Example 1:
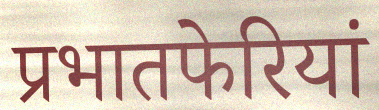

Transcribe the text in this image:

प्रभातफेरियां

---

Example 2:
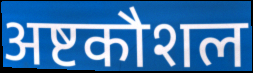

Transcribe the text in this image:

अष्टकौशल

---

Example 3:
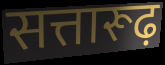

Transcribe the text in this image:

सत्तारूढ़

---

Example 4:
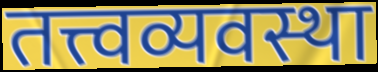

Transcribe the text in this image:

तत्त्वव्यवस्था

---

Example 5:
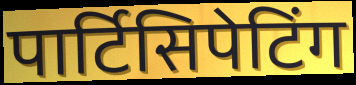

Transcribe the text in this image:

पार्टिसिपेटिंग